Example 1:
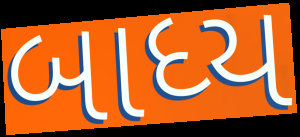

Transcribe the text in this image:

બાધ્ય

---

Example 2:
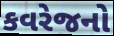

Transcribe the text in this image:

કવરેજનો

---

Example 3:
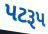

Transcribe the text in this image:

પટરૂપ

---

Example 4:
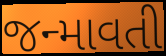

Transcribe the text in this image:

જન્માવતી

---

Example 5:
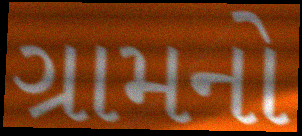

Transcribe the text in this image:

ગ્રામનો